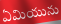
ఏమియును